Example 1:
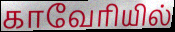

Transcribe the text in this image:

காவேரியில்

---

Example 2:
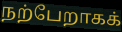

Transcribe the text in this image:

நற்பேறாகக்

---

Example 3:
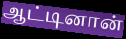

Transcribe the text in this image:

ஆட்டினான்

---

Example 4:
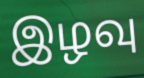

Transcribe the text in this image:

இழவு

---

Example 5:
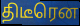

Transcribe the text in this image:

திடீரென